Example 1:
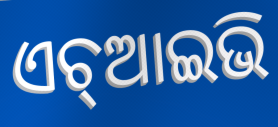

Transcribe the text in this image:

ଏଚ୍ଆଇଭି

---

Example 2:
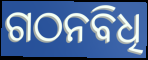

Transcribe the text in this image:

ଗଠନବିଧି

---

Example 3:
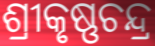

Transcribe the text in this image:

ଶ୍ରୀକୃଷ୍ଣଚନ୍ଦ୍ର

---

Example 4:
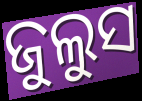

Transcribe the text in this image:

ଜୁଲୁସ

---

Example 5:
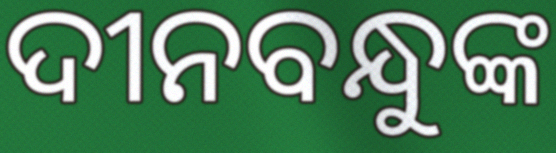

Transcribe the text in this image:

ଦୀନବନ୍ଧୁଙ୍କ